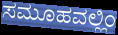
ಸಮೂಹವಲ್ಲಿಂ